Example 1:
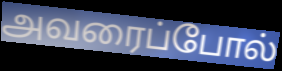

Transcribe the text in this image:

அவரைப்போல்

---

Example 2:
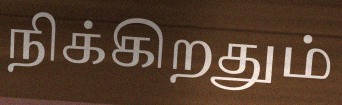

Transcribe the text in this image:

நிக்கிறதும்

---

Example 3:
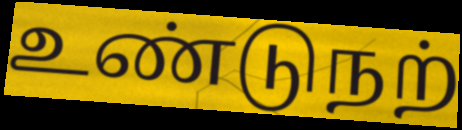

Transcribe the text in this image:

உண்டுநற்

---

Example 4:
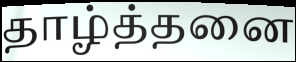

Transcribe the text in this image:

தாழ்த்தனை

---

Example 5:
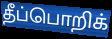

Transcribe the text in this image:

தீப்பொறிக்